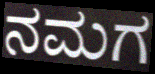
ನಮಗ